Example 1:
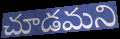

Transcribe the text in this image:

చూడమని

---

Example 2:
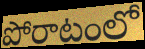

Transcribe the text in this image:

పోరాటంలో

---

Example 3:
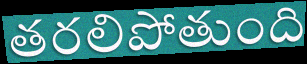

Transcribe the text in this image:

తరలిపోతుంది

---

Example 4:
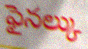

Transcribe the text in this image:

ఫైనల్కు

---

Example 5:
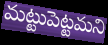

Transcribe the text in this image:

మట్టుపెట్టమని